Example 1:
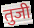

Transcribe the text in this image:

तुजी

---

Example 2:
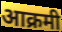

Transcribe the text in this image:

आक्रमी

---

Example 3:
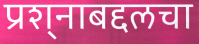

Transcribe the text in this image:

प्रश्नाबद्दलचा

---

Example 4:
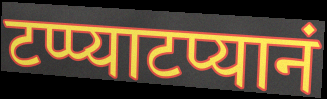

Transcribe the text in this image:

टप्प्याटप्यानं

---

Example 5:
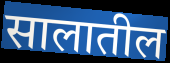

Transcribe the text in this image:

सालातील